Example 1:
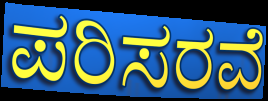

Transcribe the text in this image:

ಪರಿಸರವೆ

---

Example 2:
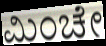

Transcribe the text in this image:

ಮಿಂಚೇ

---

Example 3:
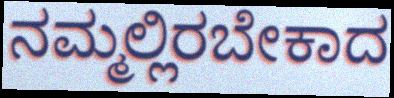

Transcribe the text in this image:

ನಮ್ಮಲ್ಲಿರಬೇಕಾದ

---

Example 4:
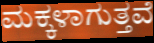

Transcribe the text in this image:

ಮಕ್ಕಳಾಗುತ್ತವೆ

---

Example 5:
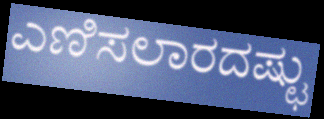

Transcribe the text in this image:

ಎಣಿಸಲಾರದಷ್ಟು